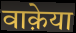
वाक़ेया